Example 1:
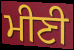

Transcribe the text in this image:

ਮੀਣੀ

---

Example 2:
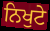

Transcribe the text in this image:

ਨਿਖੁਟੇ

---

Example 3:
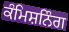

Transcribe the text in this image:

ਕੰਮਿਸ਼ਨਿੰਗ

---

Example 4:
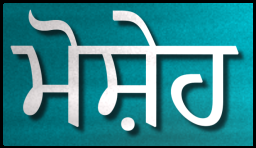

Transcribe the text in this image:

ਮੋਸ਼ੇਹ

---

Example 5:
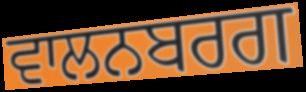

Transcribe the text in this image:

ਵਾਲਨਬਰਗ